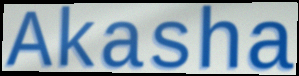
Akasha